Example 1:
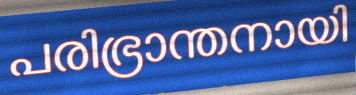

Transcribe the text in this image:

പരിഭ്രാന്തനായി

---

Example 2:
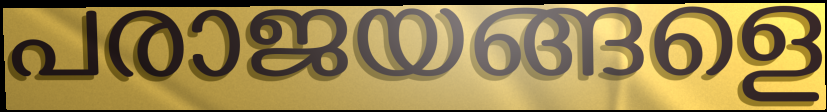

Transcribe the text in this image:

പരാജയങ്ങളെ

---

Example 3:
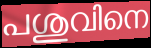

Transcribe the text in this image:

പശുവിനെ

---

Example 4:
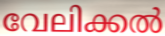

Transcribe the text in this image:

വേലിക്കൽ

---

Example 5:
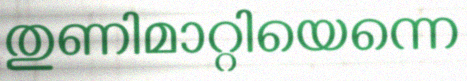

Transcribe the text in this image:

തുണിമാറ്റിയെന്നെ